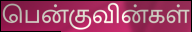
பென்குவின்கள்